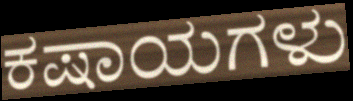
ಕಷಾಯಗಳು